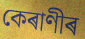
কেৰাণীৰ